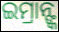
ଇମ୍ରାନ୍ଙ୍କ